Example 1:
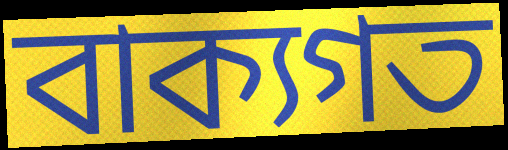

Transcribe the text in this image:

বাক্যগত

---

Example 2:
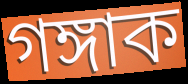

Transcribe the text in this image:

গঙ্গাক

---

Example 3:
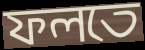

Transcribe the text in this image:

ফলতে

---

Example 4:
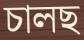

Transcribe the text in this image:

চালছ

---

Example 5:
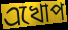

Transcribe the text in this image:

এখোপ